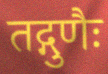
तद्गुणैः